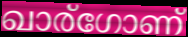
ഖാര്ഗോണ്